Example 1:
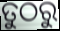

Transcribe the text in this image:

ତୁଠରୁ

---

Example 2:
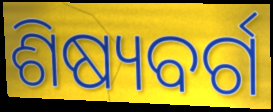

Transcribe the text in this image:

ଶିଷ୍ୟବର୍ଗ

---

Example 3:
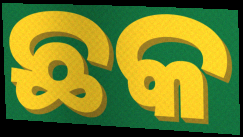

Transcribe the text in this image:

ଛକ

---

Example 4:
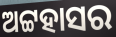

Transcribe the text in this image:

ଅଟ୍ଟହାସର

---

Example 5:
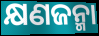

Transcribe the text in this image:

କ୍ଷଣଜନ୍ମା